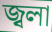
জ্বলা